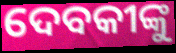
ଦେବକୀଙ୍କୁ